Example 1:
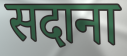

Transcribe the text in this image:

सदाना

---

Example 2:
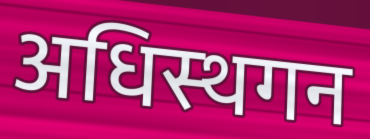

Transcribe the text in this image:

अधिस्थगन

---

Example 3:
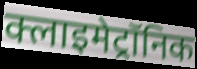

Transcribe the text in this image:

क्लाइमेट्रॉनिक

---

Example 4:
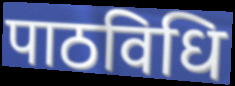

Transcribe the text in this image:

पाठविधि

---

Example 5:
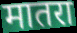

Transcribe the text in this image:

मातरा